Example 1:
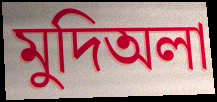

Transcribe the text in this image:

মুদিঅলা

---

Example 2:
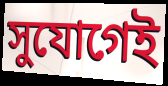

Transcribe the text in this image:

সুযোগেই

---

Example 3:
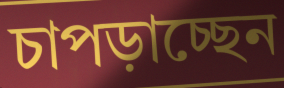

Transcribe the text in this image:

চাপড়াচ্ছেন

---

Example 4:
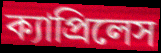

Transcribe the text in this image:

ক্যাপ্রিলেস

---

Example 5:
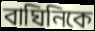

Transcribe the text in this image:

বাঘিনিকে